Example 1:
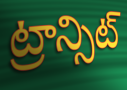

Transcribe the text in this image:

ట్రాన్సిట్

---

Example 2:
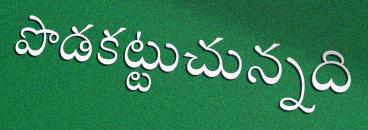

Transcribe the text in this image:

పొడకట్టుచున్నది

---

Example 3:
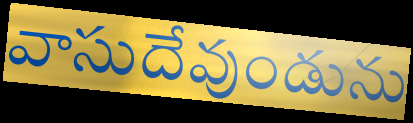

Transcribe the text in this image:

వాసుదేవుండును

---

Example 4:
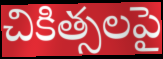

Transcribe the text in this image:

చికిత్సలపై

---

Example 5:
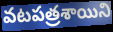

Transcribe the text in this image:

వటపత్రశాయిని